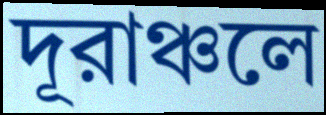
দূরাঞ্চলে